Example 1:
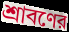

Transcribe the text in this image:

শ্রাবণের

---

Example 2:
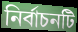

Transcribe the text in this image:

নির্বাচনটি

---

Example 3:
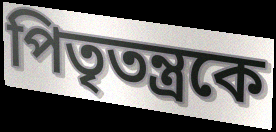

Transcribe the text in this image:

পিতৃতন্ত্রকে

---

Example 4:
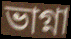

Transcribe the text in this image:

ভাগ্না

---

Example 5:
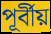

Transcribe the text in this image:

পূর্বীয়